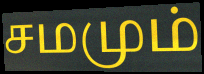
சமமும்